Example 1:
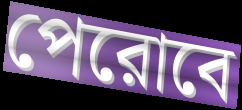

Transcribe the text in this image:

পেরোবে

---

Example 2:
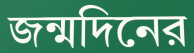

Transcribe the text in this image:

জন্মদিনের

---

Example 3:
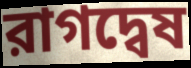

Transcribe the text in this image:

রাগদ্বেষ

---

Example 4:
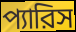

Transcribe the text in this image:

প্যারিস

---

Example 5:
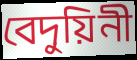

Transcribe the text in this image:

বেদুয়িনী